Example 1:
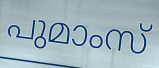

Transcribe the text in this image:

പുമാംസ്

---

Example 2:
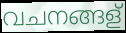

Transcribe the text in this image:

വചനങ്ങള്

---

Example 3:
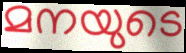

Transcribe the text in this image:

മനയുടെ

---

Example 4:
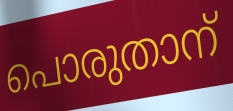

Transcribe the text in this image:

പൊരുതാന്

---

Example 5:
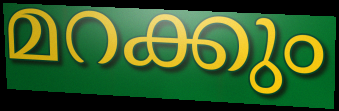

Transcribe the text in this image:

മറക്കും